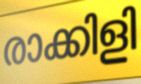
രാക്കിളി